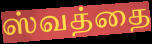
ஸ்வத்தை